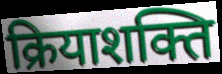
क्रियाशक्ति